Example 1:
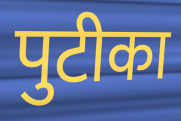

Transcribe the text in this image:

पुटीका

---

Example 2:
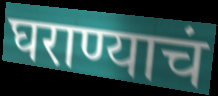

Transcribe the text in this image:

घराण्याचं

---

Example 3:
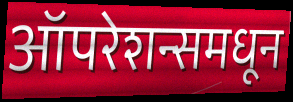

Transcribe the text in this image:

ऑपरेशन्समधून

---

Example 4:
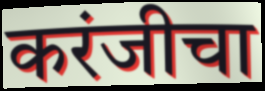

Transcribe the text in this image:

करंजीचा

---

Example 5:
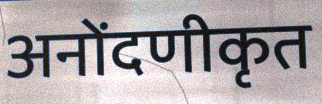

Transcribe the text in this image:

अनोंदणीकृत